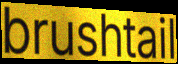
brushtail